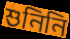
শুনিনি